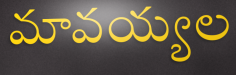
మావయ్యల